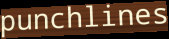
punchlines